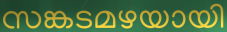
സങ്കടമഴയായി